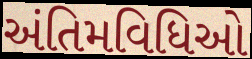
અંતિમવિધિઓ